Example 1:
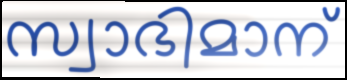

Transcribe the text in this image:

സ്വാഭിമാന്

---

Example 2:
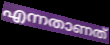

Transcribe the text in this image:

എന്നതാണത്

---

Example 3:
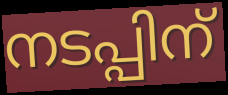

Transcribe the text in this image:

നടപ്പിന്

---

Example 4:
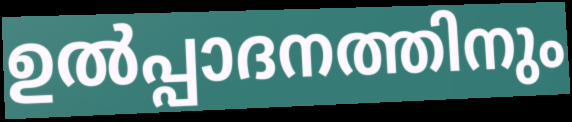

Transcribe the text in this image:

ഉൽപ്പാദനത്തിനും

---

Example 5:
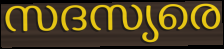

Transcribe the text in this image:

സദസ്യരെ